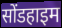
सोंडहाइम